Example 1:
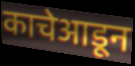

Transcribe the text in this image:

काचेआडून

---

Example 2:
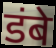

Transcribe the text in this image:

डंबे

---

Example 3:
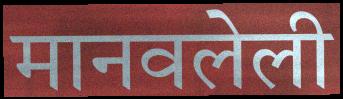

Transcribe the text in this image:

मानवलेली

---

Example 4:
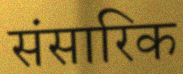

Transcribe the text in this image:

संसारिक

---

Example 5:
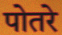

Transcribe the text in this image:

पोतरे